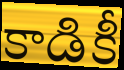
కాడికీ